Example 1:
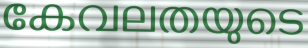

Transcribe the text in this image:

കേവലതയുടെ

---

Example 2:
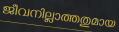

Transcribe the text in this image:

ജീവനില്ലാത്തതുമായ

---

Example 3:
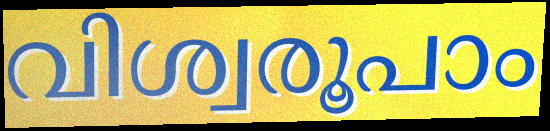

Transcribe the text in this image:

വിശ്വരൂപാം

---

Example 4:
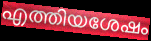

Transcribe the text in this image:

എത്തിയശേഷം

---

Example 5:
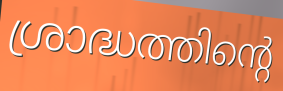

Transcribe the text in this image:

ശ്രാദ്ധത്തിന്റെ